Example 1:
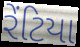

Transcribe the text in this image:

રેંટિયા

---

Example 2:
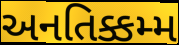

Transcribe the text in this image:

અનતિક્કમ્મ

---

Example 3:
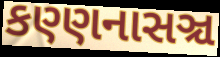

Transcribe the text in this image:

કણ્ણનાસઞ્ચ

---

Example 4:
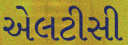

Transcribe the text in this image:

એલટીસી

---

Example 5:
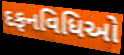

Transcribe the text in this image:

દફનવિધિઓ